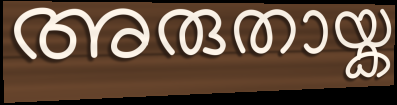
അരുതായ്ക